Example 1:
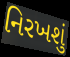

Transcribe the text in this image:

નિરખશું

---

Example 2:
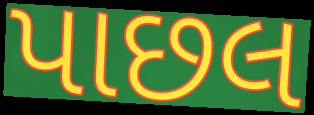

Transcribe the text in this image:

પાછલ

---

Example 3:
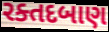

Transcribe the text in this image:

રક્તદબાણ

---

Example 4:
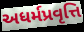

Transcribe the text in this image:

અધર્મપ્રવૃત્તિ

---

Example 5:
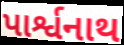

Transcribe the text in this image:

પાર્શ્વનાથ